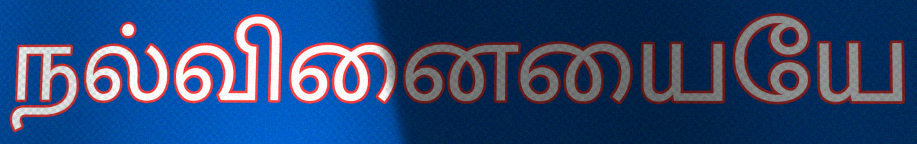
நல்வினையையே